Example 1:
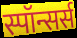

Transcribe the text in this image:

स्पॉन्सर्स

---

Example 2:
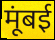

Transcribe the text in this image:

मूंबई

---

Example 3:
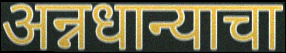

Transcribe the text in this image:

अन्नधान्याचा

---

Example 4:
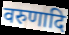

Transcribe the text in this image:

वरुणादि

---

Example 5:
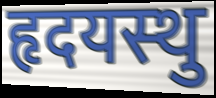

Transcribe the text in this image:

हृदयस्थु